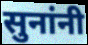
सुनांनी